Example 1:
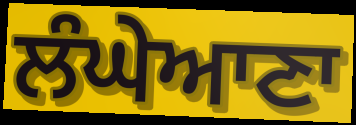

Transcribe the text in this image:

ਲੰਘੇਆਣਾ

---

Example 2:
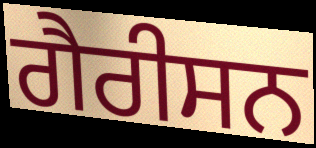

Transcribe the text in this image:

ਗੈਰੀਸਨ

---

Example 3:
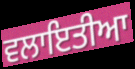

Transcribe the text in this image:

ਵਲਾਇਤੀਆ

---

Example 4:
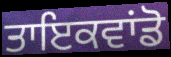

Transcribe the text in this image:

ਤਾਇਕਵਾਂਡੋ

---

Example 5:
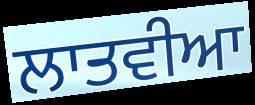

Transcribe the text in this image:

ਲਾਤਵੀਆ